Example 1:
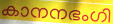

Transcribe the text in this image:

കാനനഭംഗി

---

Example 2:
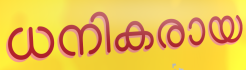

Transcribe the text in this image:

ധനികരായ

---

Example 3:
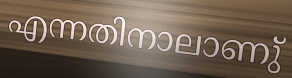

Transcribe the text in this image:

എന്നതിനാലാണു്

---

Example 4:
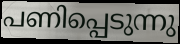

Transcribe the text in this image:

പണിപ്പെടുന്നു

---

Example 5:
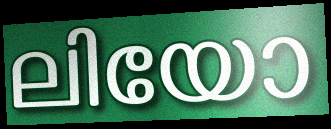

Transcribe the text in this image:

ലിയോ